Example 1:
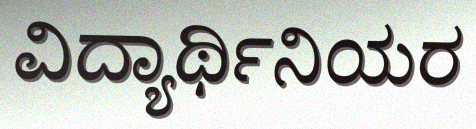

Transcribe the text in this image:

ವಿದ್ಯಾರ್ಥಿನಿಯರ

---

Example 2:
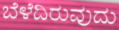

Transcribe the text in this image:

ಬೆಳೆದಿರುವುದು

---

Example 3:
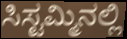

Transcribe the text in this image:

ಸಿಸ್ಟಮ್ಮಿನಲ್ಲಿ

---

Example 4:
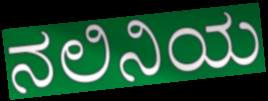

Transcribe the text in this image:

ನಲಿನಿಯ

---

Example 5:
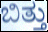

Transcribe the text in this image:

ಬಿತ್ತು